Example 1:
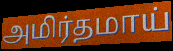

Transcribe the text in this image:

அமிர்தமாய்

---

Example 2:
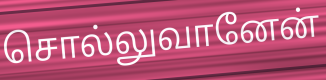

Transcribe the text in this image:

சொல்லுவானேன்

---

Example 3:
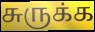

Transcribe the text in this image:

சுருக்க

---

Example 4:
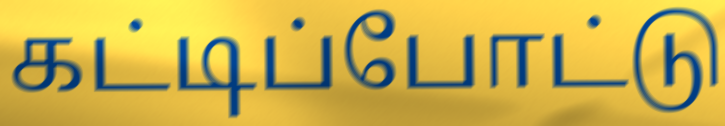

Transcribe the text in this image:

கட்டிப்போட்டு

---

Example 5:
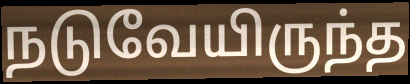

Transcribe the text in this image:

நடுவேயிருந்த